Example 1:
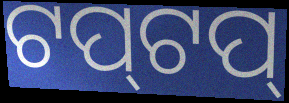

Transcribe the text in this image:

ଟପ୍‌ଟପ୍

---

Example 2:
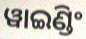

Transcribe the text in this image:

ୱାଇଣ୍ଡିଂ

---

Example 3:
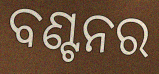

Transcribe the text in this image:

ବଣ୍ଟନର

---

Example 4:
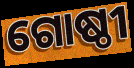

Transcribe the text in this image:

ଗୋଷ୍ଠୀ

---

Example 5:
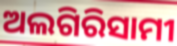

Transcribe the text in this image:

ଅଲଗିରିସାମୀ